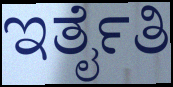
ಇರ್ತೈತಿ